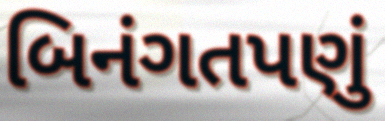
બિનંગતપણું